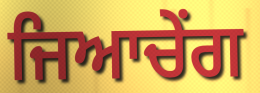
ਜਿਆਚੇਂਗ